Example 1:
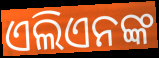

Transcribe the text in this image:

ଏଲିଏନଙ୍କ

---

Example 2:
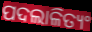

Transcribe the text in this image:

ପଦଲାଳିତ୍ୟଂ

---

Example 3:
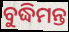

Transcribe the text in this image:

ବୁଦ୍ଧିମନ୍ତ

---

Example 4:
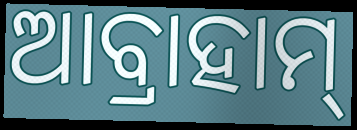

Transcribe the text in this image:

ଆବ୍ରାହାମ୍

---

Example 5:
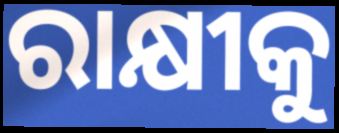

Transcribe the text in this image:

ରାକ୍ଷୀକୁ